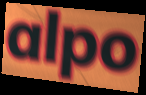
alpo